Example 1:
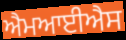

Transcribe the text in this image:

ਐਮਆਈਐਸ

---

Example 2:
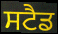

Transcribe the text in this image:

ਸਟੈਡ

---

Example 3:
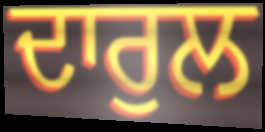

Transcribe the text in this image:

ਦਾਰੁਲ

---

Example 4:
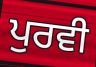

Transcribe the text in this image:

ਪੁਰਵੀ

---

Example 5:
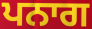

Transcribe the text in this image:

ਪਨਾਗ